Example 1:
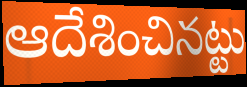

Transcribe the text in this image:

ఆదేశించినట్టు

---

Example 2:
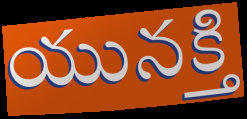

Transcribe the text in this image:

యునక్తి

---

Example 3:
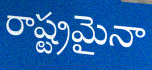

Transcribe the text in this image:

రాష్ట్రమైనా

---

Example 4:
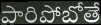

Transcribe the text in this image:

పారిపోబోతే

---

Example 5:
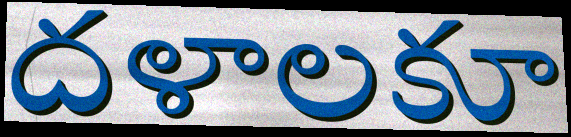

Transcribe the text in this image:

దళాలకూ